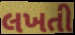
લખતી